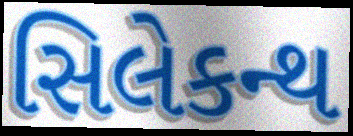
સિલેકન્થ